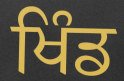
ਖਿੰਡ